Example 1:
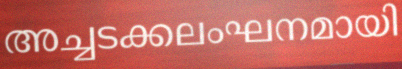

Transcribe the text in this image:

അച്ചടക്കലംഘനമായി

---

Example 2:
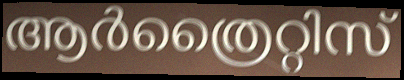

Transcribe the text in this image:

ആർത്രൈറ്റിസ്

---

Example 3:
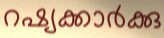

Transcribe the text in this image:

റഷ്യക്കാർക്കു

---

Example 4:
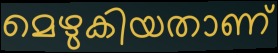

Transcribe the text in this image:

മെഴുകിയതാണ്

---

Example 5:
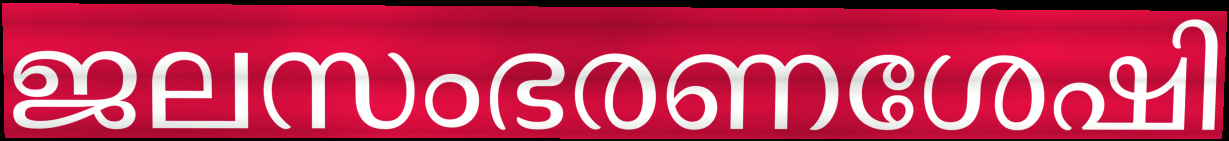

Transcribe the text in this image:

ജലസംഭരണശേഷി